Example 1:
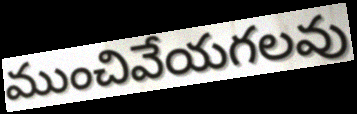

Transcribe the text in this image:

ముంచివేయగలవు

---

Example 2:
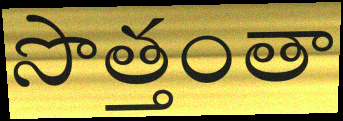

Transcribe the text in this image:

సొత్తంతా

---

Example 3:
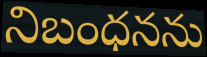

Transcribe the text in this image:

నిబంధనను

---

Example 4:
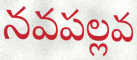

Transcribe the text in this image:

నవపల్లవ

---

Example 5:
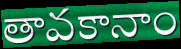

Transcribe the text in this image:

తావకానాం